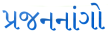
પ્રજનનાંગો